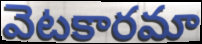
వెటకారమా